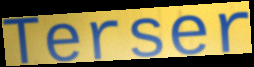
Terser